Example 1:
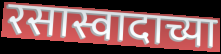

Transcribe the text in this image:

रसास्वादाच्या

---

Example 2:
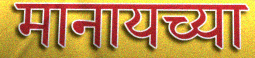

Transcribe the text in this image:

मानायच्या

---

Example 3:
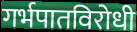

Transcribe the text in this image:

गर्भपातविरोधी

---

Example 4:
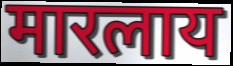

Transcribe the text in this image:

मारलाय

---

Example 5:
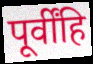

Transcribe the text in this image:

पूर्वींहि